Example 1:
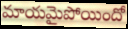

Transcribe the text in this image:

మాయమైపోయిందో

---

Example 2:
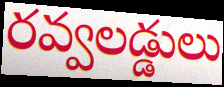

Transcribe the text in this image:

రవ్వలడ్డులు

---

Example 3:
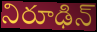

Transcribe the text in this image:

నిరూఢిన్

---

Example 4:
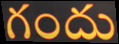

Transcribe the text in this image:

గందు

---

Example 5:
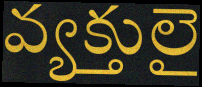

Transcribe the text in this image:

వ్యక్తులై